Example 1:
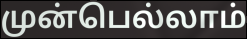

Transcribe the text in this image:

முன்பெல்லாம்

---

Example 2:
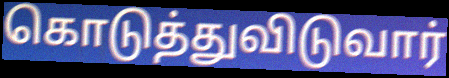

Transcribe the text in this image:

கொடுத்துவிடுவார்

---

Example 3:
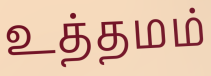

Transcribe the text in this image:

உத்தமம்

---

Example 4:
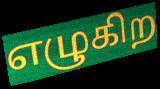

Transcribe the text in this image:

எழுகிற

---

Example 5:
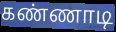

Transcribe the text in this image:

கண்ணாடி